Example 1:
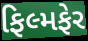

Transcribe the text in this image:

ફિલ્મફેર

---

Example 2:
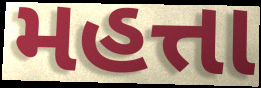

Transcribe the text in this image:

મહત્તા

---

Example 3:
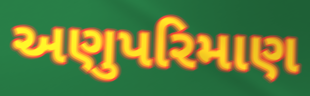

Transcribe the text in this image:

અણુપરિમાણ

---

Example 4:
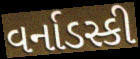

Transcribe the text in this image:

વર્નાડસ્કી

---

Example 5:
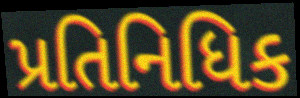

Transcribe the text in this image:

પ્રતિનિધિક